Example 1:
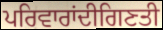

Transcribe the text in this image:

ਪਰਿਵਾਰਾਂਦੀਗਿਣਤੀ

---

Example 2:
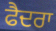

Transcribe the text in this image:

ਫੈਦਰਾ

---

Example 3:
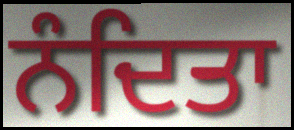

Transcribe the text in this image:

ਨੰਦਿਤਾ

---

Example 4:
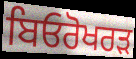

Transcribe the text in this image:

ਬਿਓਰੋਖਰੜ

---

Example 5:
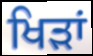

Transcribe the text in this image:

ਖਿੜਾਂ